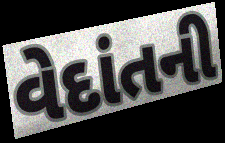
વેદાંતની